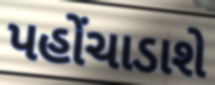
પહોંચાડાશે